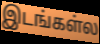
இடங்கள்ல